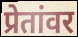
प्रेतांवर